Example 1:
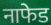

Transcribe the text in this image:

नाफेड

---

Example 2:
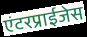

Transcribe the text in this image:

एंटरप्राईजेस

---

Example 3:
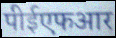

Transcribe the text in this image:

पीईएफआर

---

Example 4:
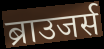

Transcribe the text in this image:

ब्राउजर्स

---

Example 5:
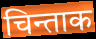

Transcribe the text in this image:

चिन्ताक